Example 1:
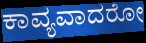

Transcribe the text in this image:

ಕಾವ್ಯವಾದರೋ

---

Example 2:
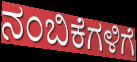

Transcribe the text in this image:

ನಂಬಿಕೆಗಳಿಗೆ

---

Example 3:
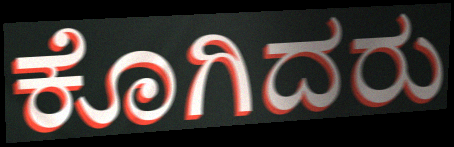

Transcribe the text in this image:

ಕೊಗಿದರು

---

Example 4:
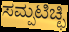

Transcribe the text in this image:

ಸಮ್ಪಟಿಚ್ಛಿ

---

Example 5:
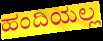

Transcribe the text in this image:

ಹಂದಿಯಲ್ಲ